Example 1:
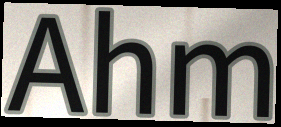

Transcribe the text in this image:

Ahm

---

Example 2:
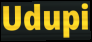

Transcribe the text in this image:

Udupi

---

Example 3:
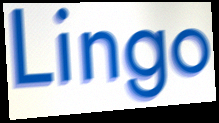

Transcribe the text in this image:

Lingo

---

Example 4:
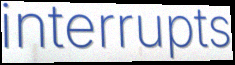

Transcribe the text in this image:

interrupts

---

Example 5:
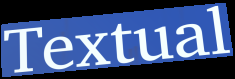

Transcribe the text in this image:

Textual